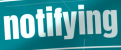
notifying